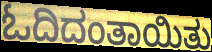
ಓದಿದಂತಾಯಿತು